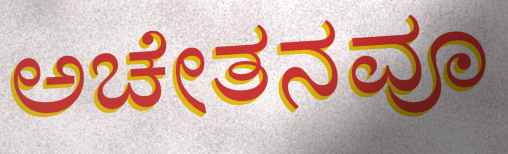
ಅಚೇತನವೂ